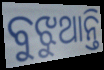
ବୁଝୁଥାନ୍ତି